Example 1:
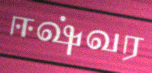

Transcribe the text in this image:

ஈஷ்வர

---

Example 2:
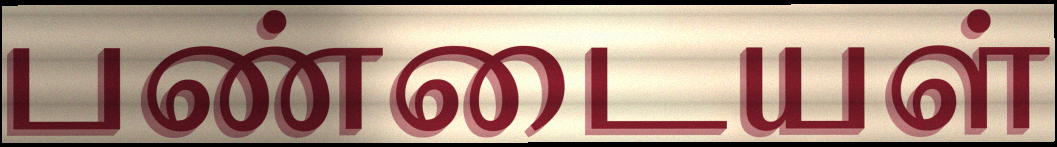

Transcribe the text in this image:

பண்டையள்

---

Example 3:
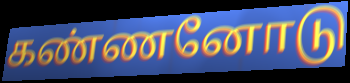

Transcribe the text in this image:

கண்ணனோடு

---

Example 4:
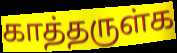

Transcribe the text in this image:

காத்தருள்க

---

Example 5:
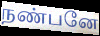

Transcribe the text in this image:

நண்பனே